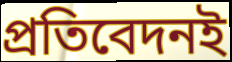
প্রতিবেদনই